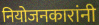
नियोजनकारांनी